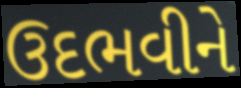
ઉદભવીને